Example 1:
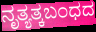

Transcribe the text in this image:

ನೃತ್ಯತ್ಕಬಂಧದ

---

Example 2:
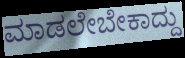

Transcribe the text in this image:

ಮಾಡಲೇಬೇಕಾದ್ದು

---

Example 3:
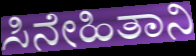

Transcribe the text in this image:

ಸಿನೇಹಿತಾನಿ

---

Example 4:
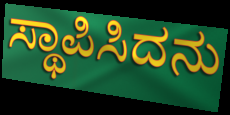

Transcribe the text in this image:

ಸ್ಥಾಪಿಸಿದನು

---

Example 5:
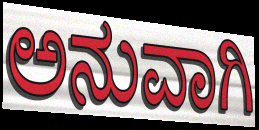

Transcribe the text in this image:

ಅನುವಾಗಿ